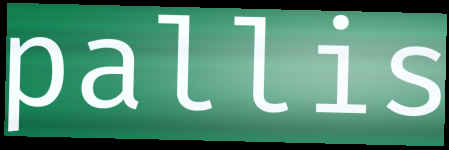
pallis